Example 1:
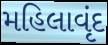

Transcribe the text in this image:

મહિલાવૃંદ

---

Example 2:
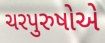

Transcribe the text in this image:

ચરપુરુષોએ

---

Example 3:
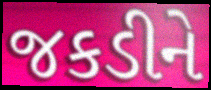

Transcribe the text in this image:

જકડીને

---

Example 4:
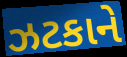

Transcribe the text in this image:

ઝટકાને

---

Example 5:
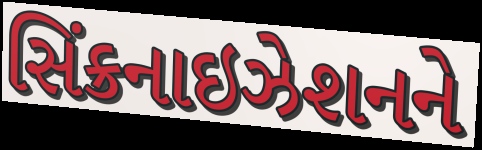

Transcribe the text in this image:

સિંક્રનાઇઝેશનને